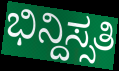
ಭಿನ್ದಿಸ್ಸತಿ